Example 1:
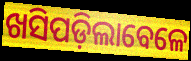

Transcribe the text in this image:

ଖସିପଡ଼ିଲାବେଳେ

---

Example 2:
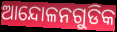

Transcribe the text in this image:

ଆନ୍ଦୋଳନଗୁଡିକ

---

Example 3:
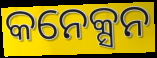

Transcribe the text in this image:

କନେକ୍ସନ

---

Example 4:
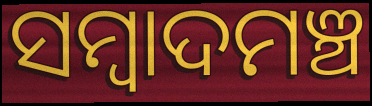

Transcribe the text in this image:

ସମ୍ୱାଦମଞ୍ଚ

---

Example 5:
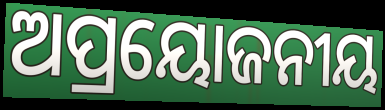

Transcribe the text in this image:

ଅପ୍ରୟୋଜନୀୟ